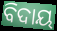
ବିଦାୟ